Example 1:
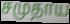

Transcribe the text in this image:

சமுதாய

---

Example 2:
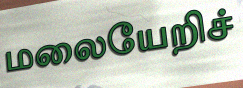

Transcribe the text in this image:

மலையேறிச்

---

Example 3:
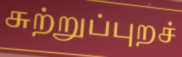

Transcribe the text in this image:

சுற்றுப்புறச்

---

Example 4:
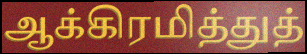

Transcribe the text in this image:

ஆக்கிரமித்துத்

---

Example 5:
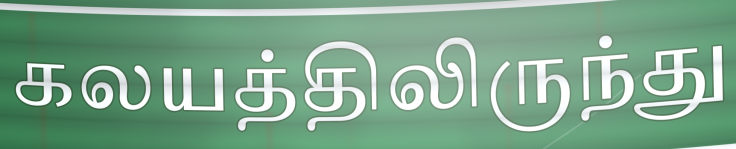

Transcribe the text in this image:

கலயத்திலிருந்து